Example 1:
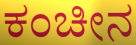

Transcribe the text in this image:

ಕಂಚೀನ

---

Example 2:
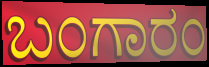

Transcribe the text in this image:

ಬಂಗಾರಂ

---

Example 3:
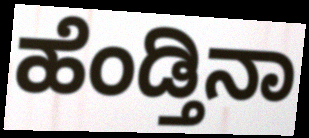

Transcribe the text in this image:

ಹೆಂಡ್ತಿನಾ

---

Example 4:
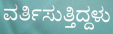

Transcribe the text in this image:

ವರ್ತಿಸುತ್ತಿದ್ದಳು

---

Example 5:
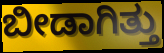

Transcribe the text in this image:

ಬೀಡಾಗಿತ್ತು